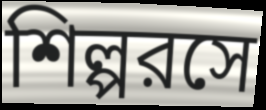
শিল্পরসে